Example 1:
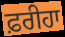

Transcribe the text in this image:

ਫ਼ਰੀਹਾ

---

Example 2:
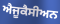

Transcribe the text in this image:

ਐਜੂਕੈਸੀਅਨ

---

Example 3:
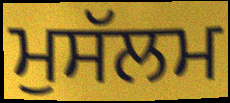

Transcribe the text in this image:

ਮੁਸੱਲਮ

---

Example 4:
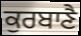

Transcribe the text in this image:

ਕੁਰਬਾਣੈ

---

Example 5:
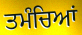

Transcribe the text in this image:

ਤਮੰਚਿਆਂ